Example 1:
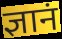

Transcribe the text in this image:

ज्ञानं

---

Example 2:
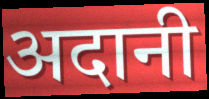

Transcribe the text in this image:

अदानी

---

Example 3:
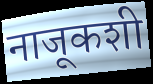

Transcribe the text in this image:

नाजूकशी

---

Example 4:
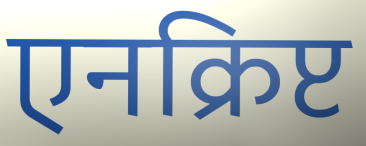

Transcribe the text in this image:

एनक्रिप्ट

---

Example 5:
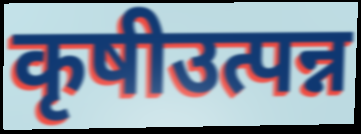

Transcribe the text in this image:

कृषीउत्पन्न